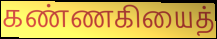
கண்ணகியைத்